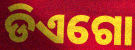
ଡିଏଗୋ